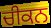
ਚੀਕਨ